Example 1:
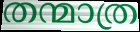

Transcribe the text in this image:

തന്മാത്ര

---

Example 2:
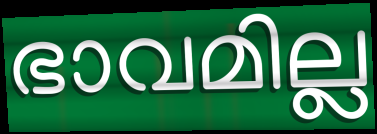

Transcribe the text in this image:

ഭാവമില്ല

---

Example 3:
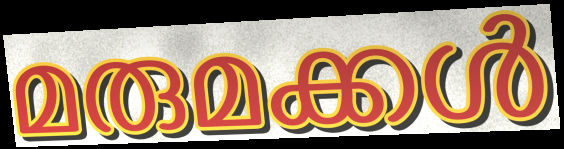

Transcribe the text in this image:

മരുമക്കൾ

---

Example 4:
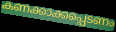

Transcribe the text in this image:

കണക്കാക്കപ്പെടണം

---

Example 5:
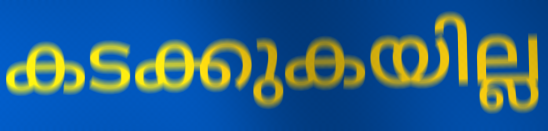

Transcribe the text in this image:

കടക്കുകയില്ല